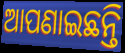
ଆପଣାଇଛନ୍ତି